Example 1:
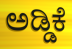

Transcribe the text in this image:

ಅಡ್ಡಿಕೆ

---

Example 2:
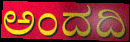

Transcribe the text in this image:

ಅಂದದಿ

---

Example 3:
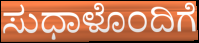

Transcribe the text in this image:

ಸುಧಾಳೊಂದಿಗೆ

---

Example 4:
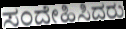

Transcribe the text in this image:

ಸಂದೇಹಿಸಿದರು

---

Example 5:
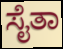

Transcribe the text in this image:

ಸೈತಾ